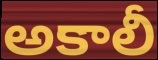
అకాలీ